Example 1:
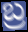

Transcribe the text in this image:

బ్ర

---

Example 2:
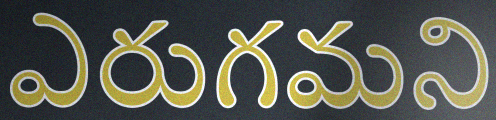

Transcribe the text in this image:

ఎరుగమని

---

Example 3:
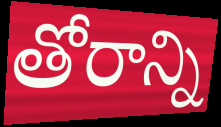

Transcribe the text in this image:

తోరాన్ని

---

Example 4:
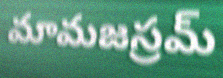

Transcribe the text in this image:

మామజస్రమ్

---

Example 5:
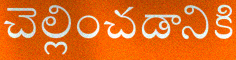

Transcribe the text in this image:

చెల్లించడానికి